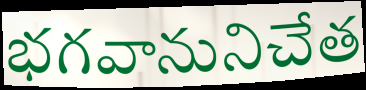
భగవానునిచేత